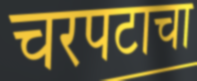
चरपटाचा